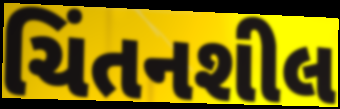
ચિંતનશીલ